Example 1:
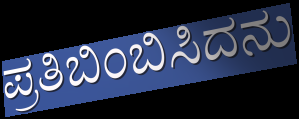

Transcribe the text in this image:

ಪ್ರತಿಬಿಂಬಿಸಿದನು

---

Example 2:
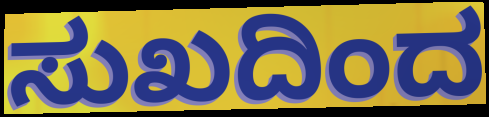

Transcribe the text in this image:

ಸುಖದಿಂದ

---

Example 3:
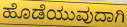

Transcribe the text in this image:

ಹೊಡೆಯುವುದಾಗಿ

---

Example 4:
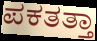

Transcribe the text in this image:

ಪಕತತ್ತಾ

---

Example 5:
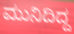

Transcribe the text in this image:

ಮುನಿದಿದ್ದ